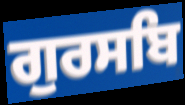
ਗੁਰਸਬਿ